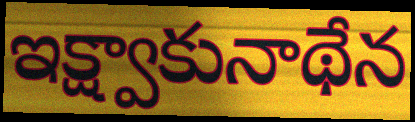
ఇక్ష్వాకునాథేన